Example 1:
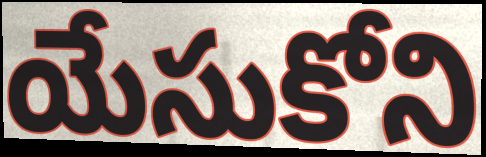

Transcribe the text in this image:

యేసుకోని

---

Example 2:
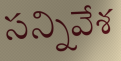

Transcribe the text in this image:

సన్నివేశ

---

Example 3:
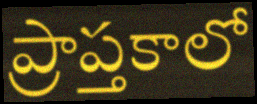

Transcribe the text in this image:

ప్రాప్తకాలో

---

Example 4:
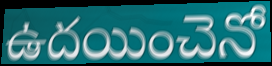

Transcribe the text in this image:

ఉదయించెనో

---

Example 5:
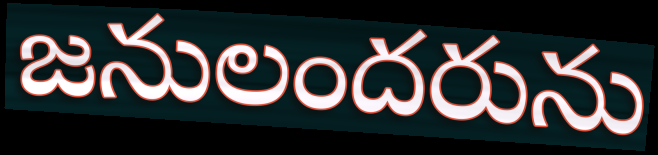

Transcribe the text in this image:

జనులందరును